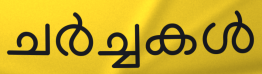
ചർച്ചകൾ